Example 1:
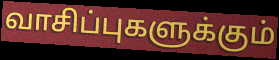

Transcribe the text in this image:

வாசிப்புகளுக்கும்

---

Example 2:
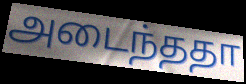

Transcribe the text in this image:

அடைந்ததா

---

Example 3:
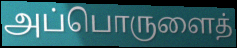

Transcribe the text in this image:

அப்பொருளைத்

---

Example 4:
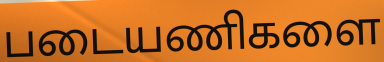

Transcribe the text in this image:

படையணிகளை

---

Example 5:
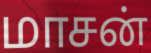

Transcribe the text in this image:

மாசன்